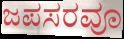
ಜಪಸರವೂ